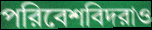
পরিবেশবিদরাও